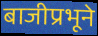
बाजीप्रभूने